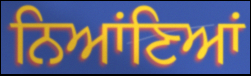
ਨਿਆਂਣਿਆਂ